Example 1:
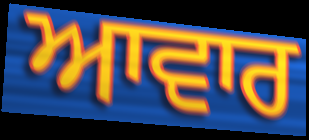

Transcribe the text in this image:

ਆਵਾਰ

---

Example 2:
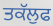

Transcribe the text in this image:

ਤਕੱਲੁਫ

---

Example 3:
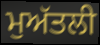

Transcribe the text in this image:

ਮੁਅੱਤਲੀ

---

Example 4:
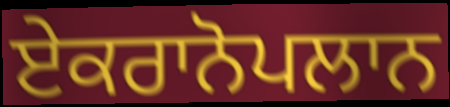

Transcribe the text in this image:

ਏਕਰਾਨੋਪਲਾਨ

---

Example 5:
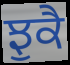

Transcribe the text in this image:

ਝੁਕੈ